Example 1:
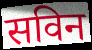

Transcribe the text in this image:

सविन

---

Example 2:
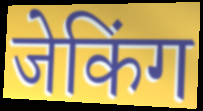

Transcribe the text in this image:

जेकिंग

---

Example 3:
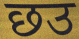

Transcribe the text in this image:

छउ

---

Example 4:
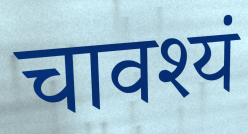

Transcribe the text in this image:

चावश्यं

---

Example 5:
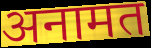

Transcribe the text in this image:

अनामत